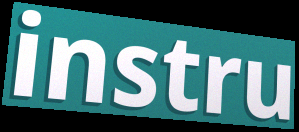
instru